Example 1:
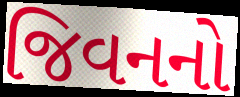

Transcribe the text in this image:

જિવનનો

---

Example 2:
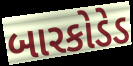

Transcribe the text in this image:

બારકોડેડ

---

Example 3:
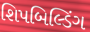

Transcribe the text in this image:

શિપબિલ્ડિંગ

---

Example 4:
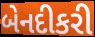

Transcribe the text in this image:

બેનદીકરી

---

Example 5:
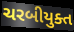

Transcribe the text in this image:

ચરબીયુક્ત